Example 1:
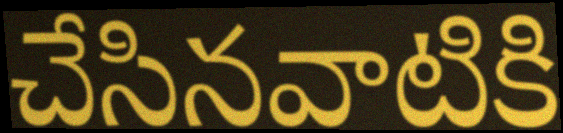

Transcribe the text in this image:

చేసినవాటికి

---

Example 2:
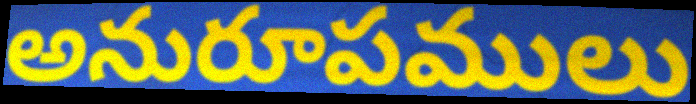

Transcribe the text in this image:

అనురూపములు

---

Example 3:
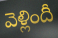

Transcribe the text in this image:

వెళ్లిందీ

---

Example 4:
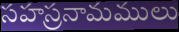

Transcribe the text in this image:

సహస్రనామములు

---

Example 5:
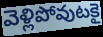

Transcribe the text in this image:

వెళ్లిపోవుటకై